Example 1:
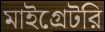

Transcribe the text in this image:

মাইগ্রেটরি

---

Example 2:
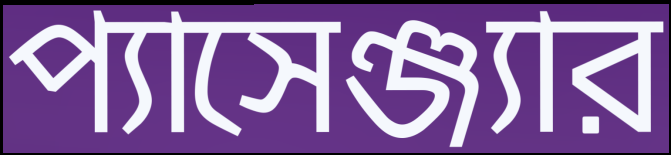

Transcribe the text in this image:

প্যাসেঞ্জ্যার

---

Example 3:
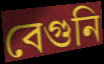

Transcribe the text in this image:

বেগুনি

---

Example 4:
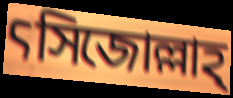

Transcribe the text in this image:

ৎসিজোল্লাহ্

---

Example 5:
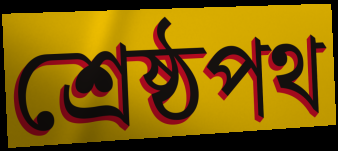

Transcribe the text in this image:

শ্রেষ্ঠপথ